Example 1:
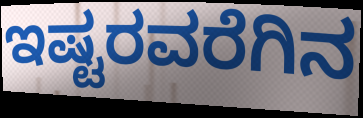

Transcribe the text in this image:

ಇಷ್ಟರವರೆಗಿನ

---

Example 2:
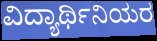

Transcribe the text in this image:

ವಿದ್ಯಾರ್ಥಿನಿಯರ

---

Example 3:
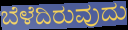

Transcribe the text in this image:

ಬೆಳೆದಿರುವುದು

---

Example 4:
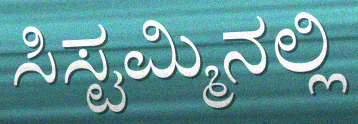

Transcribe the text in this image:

ಸಿಸ್ಟಮ್ಮಿನಲ್ಲಿ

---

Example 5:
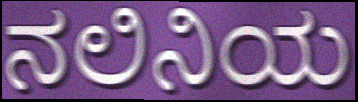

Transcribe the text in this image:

ನಲಿನಿಯ